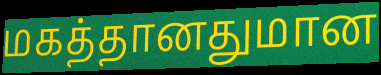
மகத்தானதுமான